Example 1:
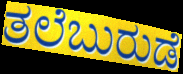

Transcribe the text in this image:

ತಲೆಬುರುಡೆ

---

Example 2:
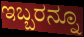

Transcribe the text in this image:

ಇಬ್ಬರನ್ನೂ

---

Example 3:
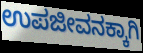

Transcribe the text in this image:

ಉಪಜೀವನಕ್ಕಾಗಿ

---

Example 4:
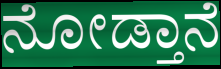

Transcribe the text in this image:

ನೋಡ್ತಾನೆ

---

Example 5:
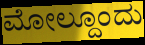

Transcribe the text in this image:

ಮೋಲ್ದೂಂದು